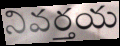
నివర్తయ